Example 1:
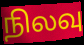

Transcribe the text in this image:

நிலவு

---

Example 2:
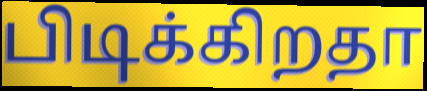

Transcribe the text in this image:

பிடிக்கிறதா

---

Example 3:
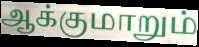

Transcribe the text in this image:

ஆக்குமாறும்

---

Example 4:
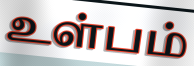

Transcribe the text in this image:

உள்பம்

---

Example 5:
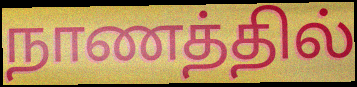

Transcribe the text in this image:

நாணத்தில்